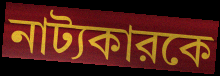
নাট্যকারকে